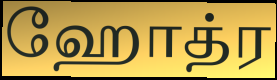
ஹோத்ர